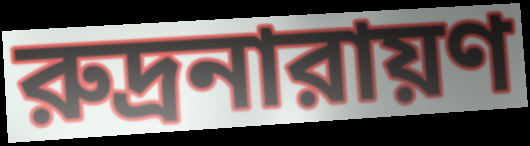
রুদ্রনারায়ণ